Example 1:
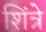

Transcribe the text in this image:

शिंत्रे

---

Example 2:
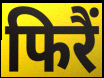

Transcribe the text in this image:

फिरैं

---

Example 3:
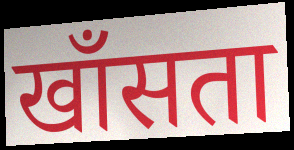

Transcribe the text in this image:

खाँसता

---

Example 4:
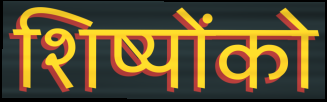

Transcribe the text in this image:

शिष्योंको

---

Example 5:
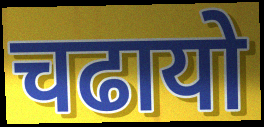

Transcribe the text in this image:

चढायो